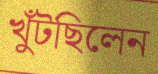
খুঁটছিলেন